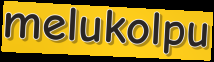
melukolpu